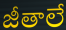
జీతాలే